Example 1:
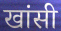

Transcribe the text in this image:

खांसी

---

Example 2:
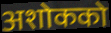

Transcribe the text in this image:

अशोकको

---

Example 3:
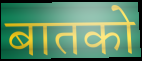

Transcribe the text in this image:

बातको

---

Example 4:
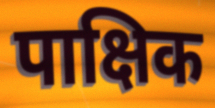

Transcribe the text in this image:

पाक्षिक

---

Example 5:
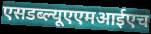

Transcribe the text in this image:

एसडब्ल्यूएएमआईएच